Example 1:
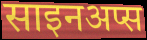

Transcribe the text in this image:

साइनअप्स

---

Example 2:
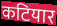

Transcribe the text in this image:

कटियार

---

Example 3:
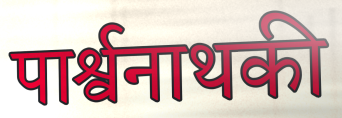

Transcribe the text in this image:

पार्श्वनाथकी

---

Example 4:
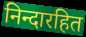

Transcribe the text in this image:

निन्दारहित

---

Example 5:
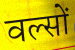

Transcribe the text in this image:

वल्सों